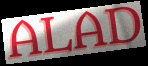
ALAD